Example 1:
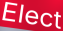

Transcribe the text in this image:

Elect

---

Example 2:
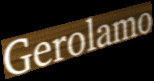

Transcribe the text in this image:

Gerolamo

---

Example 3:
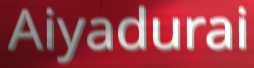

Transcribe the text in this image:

Aiyadurai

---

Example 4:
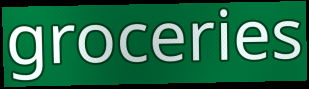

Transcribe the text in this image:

groceries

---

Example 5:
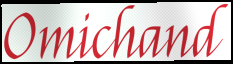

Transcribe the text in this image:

Omichand